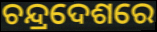
ଚନ୍ଦ୍ରଦେଶରେ